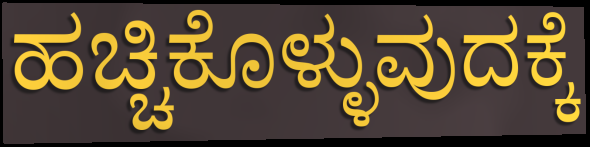
ಹಚ್ಚಿಕೊಳ್ಳುವುದಕ್ಕೆ